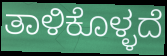
ತಾಳಿಕೊಳ್ಳದೆ